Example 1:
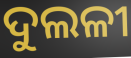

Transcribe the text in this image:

ଦୁଲଳୀ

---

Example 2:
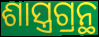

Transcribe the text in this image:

ଶାସ୍ତ୍ରଗ୍ରନ୍ଥ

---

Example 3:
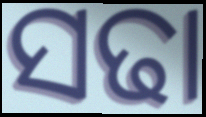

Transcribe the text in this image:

ସଢା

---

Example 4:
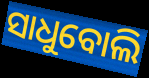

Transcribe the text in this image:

ସାଧୁବୋଲି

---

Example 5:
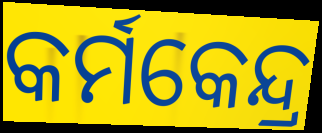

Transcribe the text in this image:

କର୍ମକେନ୍ଦ୍ର